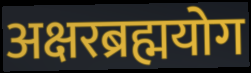
अक्षरब्रह्मयोग